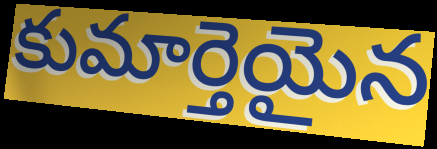
కుమార్తెయైన